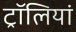
ट्रॉलियां